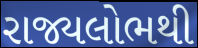
રાજ્યલોભથી